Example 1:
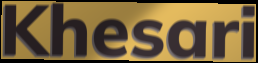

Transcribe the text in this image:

Khesari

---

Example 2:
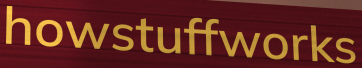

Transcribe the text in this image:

howstuffworks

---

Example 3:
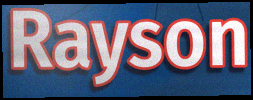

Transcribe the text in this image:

Rayson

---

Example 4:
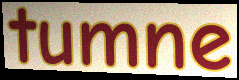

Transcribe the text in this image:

tumne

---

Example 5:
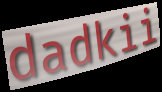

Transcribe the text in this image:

dadkii